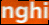
nghi